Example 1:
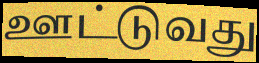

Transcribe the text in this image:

ஊட்டுவது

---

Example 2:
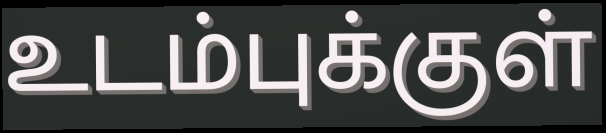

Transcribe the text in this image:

உடம்புக்குள்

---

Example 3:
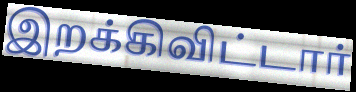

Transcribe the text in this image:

இறக்கிவிட்டார்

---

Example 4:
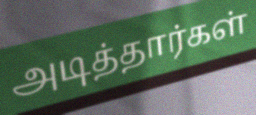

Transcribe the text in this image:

அடித்தார்கள்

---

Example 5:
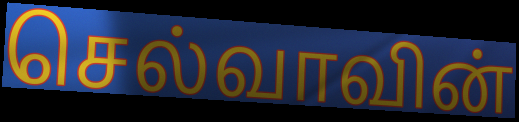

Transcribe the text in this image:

செல்வாவின்